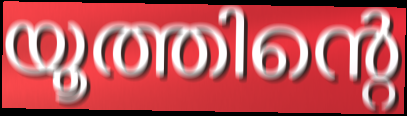
യൂത്തിന്റെ